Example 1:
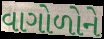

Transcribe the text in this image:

વાગોળોને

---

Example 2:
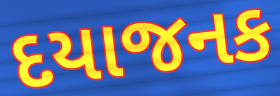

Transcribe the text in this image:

દયાજનક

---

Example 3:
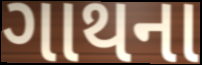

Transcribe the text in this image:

ગાથના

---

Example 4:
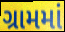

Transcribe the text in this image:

ગ્રામમાં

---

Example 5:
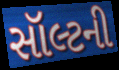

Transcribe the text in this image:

સૉલ્ટની